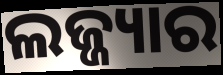
ଲଜ୍ଜ୍ୟାର